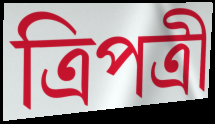
ত্রিপত্রী